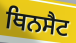
ਥਿਨਸੈਟ